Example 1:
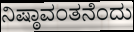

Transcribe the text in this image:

ನಿಷ್ಠಾವಂತನೆಂದು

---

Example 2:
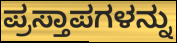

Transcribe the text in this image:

ಪ್ರಸ್ತಾಪಗಳನ್ನು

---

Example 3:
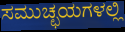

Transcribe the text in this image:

ಸಮುಚ್ಛಯಗಳಲ್ಲಿ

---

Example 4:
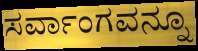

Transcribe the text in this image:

ಸರ್ವಾಂಗವನ್ನೂ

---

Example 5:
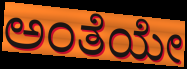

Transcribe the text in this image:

ಅಂತೆಯೇ